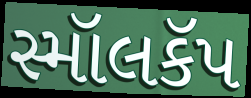
સ્મૉલકૅપ